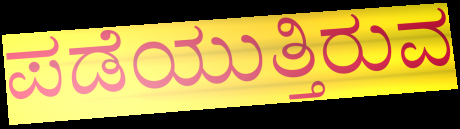
ಪಡೆಯುತ್ತಿರುವ